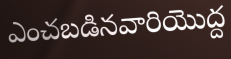
ఎంచబడినవారియొద్ద